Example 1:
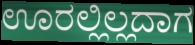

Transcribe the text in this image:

ಊರಲ್ಲಿಲ್ಲದಾಗ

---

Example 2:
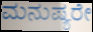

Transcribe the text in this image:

ಮನುಷ್ಯರೇ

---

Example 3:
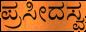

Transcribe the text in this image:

ಪ್ರಸೀದಸ್ವ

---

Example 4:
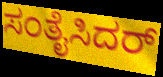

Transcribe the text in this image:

ಸಂತೈಸಿದರ್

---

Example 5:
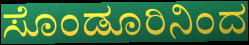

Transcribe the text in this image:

ಸೊಂಡೂರಿನಿಂದ